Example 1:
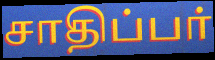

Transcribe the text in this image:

சாதிப்பர்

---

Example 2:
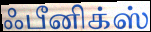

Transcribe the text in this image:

ஃபீனிக்ஸ்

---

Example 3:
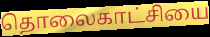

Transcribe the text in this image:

தொலைகாட்சியை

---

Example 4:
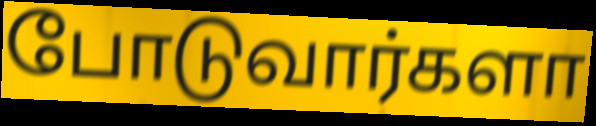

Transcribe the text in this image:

போடுவார்களா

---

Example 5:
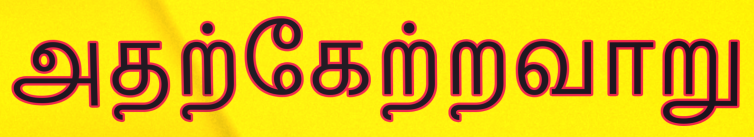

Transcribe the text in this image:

அதற்கேற்றவாறு